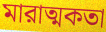
মারাত্মকতা